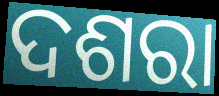
ଦଶରା